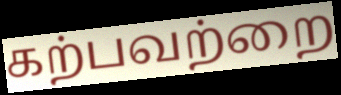
கற்பவற்றை